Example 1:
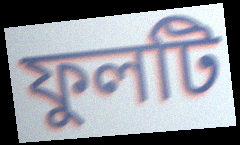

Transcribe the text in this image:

ফুলটি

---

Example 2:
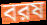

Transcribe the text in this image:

বরষ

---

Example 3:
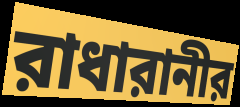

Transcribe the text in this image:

রাধারানীর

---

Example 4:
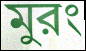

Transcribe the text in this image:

মুরং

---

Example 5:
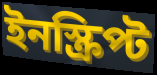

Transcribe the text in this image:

ইনস্ক্রিপ্ট